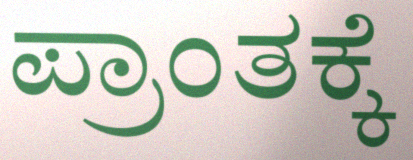
ಪ್ರಾಂತಕ್ಕೆ